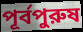
পূর্বপুরুষ